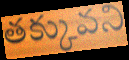
తక్కువని